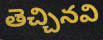
తెచ్చినవి